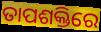
ତାପଶକ୍ତିରେ